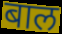
बाल